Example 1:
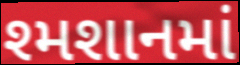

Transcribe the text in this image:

શ્મશાનમાં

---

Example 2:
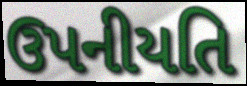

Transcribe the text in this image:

ઉપનીયતિ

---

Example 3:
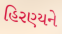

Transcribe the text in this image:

હિરણ્યને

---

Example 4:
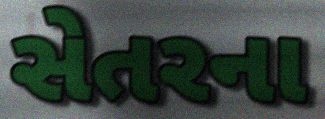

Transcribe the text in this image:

સેતરના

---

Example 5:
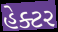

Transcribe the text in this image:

હેક્ટર